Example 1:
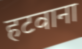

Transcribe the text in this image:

हटवाना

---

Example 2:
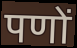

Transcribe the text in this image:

पणों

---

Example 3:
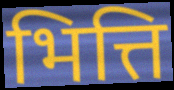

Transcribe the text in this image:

भित्ति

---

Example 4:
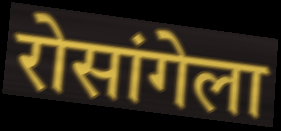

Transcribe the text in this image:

रोसांगेला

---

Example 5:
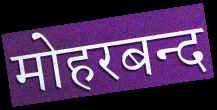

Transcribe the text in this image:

मोहरबन्द